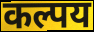
कल्पय